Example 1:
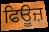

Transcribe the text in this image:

ਫਿਊਜ਼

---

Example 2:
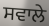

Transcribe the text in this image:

ਸਵਾਲੇ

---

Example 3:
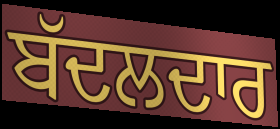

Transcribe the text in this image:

ਬੱਦਲਦਾਰ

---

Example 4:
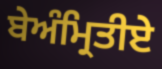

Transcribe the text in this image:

ਬੇਅੰਮ੍ਰਿਤੀਏ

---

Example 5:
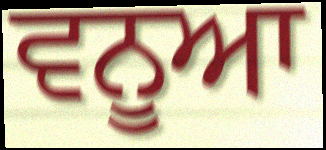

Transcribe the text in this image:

ਵਨੂਆ